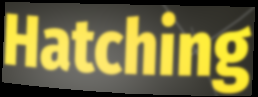
Hatching